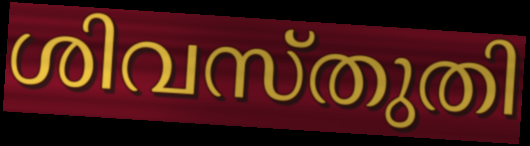
ശിവസ്തുതി